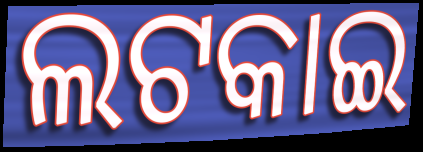
ଲଟକାଇ